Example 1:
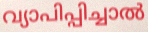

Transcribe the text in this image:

വ്യാപിപ്പിച്ചാൽ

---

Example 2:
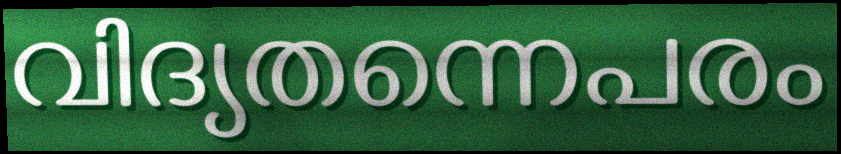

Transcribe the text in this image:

വിദ്യതന്നെപരം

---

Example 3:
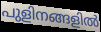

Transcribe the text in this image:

പുളിനങ്ങളിൽ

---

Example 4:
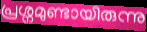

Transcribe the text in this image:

പ്രശ്നമുണ്ടായിരുന്നു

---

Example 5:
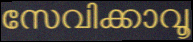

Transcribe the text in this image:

സേവിക്കാവൂ